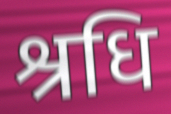
श्रधि